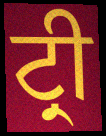
ਟ੍ਰੀ